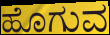
ಹೊಗುವ